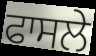
ਫਾਸਲੇ